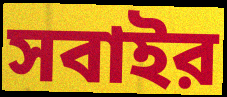
সবাইর